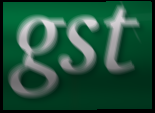
gst